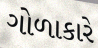
ગોળાકારે